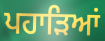
ਪਹਾੜਿਆਂ